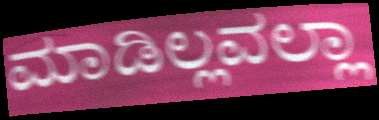
ಮಾಡಿಲ್ಲವಲ್ಲಾ